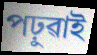
পঢ়ুৱাই